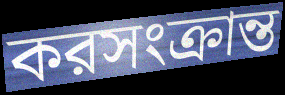
করসংক্রান্ত